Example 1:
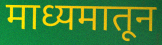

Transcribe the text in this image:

माध्यमातून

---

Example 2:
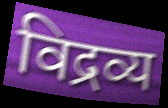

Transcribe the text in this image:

विद्रव्य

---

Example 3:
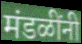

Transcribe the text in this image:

मंडळींनी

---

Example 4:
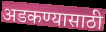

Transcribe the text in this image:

अडकण्यासाठी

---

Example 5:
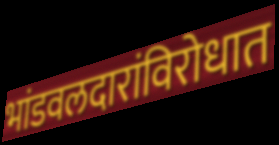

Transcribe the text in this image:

भांडवलदारांविरोधात